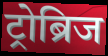
ट्रोब्रिज